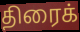
திரைக்